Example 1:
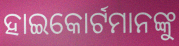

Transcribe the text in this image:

ହାଇକୋର୍ଟମାନଙ୍କୁ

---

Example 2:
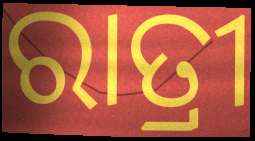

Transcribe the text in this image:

ରାତ୍ରୀ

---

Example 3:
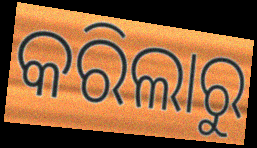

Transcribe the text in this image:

କରିଲାରୁ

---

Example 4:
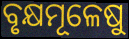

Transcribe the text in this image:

ବୃକ୍ଷମୂଳେଷୁ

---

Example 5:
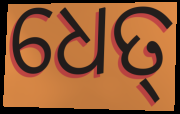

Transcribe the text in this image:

ଧେତ୍